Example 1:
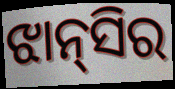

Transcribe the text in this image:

ଝାନ୍‌ସିର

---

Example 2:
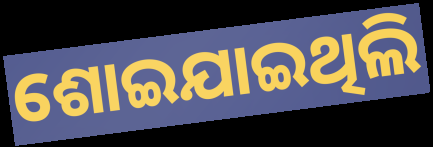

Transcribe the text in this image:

ଶୋଇଯାଇଥିଲି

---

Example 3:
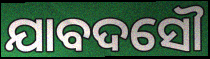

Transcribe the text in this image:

ଯାବଦସୌ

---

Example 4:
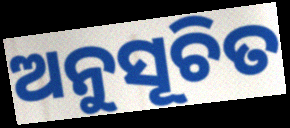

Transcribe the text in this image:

ଅନୁସୂଚିତ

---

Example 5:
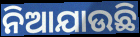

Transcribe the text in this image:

ନିଆଯାଉଛି